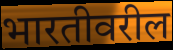
भारतीवरील